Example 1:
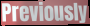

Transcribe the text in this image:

Previously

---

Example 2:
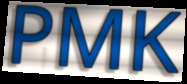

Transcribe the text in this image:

PMK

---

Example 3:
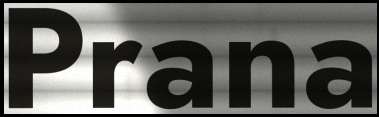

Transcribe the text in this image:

Prana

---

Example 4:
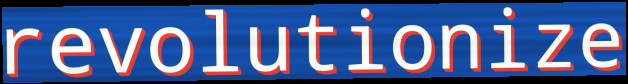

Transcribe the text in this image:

revolutionize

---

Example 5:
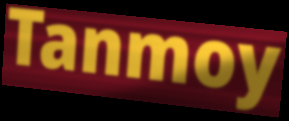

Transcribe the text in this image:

Tanmoy